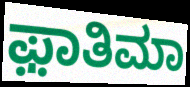
ಫ಼ಾತಿಮಾ